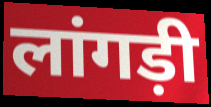
लांगड़ी